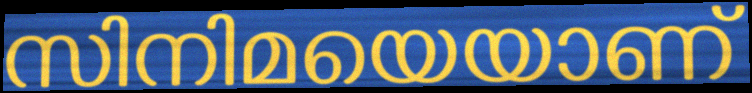
സിനിമയെയാണ്